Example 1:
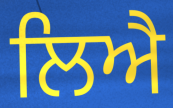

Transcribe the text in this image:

ਲਿਐ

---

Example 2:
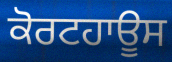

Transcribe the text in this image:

ਕੋਰਟਹਾਊਸ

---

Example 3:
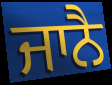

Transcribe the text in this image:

ਜਾਨੈ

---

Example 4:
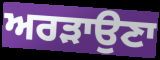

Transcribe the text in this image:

ਅਰੜਾਉਣਾ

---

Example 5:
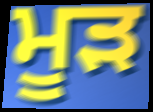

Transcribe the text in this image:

ਮੂੜ